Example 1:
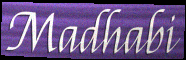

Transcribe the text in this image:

Madhabi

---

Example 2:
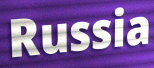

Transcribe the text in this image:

Russia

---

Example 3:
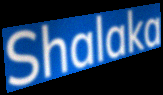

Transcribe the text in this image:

Shalaka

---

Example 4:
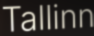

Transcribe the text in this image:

Tallinn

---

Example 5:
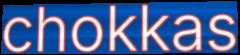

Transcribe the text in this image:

chokkas